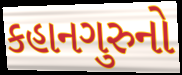
કહાનગુરુનો